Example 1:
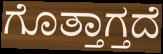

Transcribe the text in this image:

ಗೊತ್ತಾಗ್ತದೆ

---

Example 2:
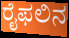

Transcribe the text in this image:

ರೈಫಲಿನ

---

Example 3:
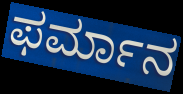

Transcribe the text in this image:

ಫರ್ಮಾನ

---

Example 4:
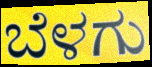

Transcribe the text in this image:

ಬೆಳಗು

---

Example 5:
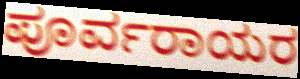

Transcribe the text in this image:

ಪೂರ್ವರಾಯರ